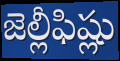
జెల్లీఫిష్లు